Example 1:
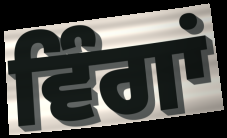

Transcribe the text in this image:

ਵਿੰਗਾਂ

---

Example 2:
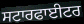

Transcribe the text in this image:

ਸਟਾਰਫਾਈਟਰ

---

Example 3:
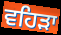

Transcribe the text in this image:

ਵਹਿੜਾ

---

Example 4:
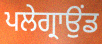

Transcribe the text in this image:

ਪਲੇਗ੍ਰਾਉਂਡ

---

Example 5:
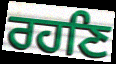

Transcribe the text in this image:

ਰਹਣਿ